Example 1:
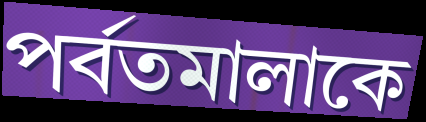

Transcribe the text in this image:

পর্বতমালাকে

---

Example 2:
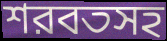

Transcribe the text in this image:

শরবতসহ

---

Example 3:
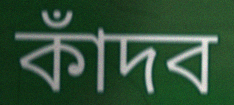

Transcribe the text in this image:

কাঁদব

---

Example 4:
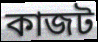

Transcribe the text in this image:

কাজট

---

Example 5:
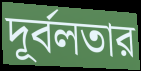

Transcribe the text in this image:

দূর্বলতার